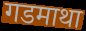
गडमाथा